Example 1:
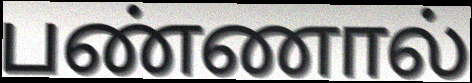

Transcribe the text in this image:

பண்ணால்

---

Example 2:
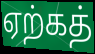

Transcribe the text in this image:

ஏற்கத்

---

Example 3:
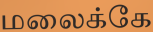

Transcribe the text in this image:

மலைக்கே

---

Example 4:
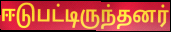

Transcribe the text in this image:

ஈடுபட்டிருந்தனர்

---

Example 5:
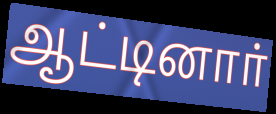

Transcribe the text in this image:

ஆட்டினார்